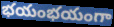
భయంభయంగా